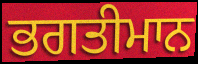
ਭਗਤੀਮਾਨ